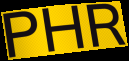
PHR